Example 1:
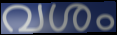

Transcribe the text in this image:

വശം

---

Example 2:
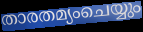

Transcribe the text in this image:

താരതമ്യംചെയ്യും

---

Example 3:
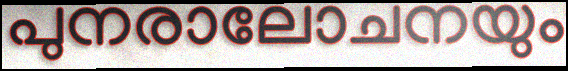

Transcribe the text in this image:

പുനരാലോചനയും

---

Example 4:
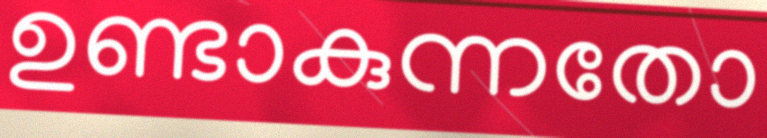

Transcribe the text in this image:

ഉണ്ടാകുന്നതോ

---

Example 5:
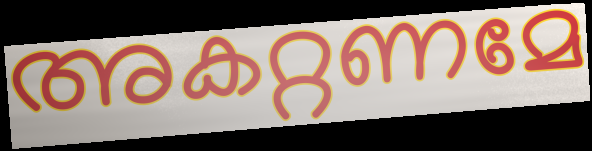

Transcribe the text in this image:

അകറ്റണമേ